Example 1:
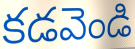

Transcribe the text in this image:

కడవెండి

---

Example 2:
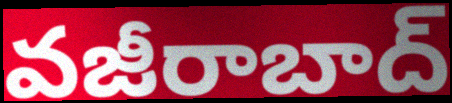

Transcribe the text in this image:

వజీరాబాద్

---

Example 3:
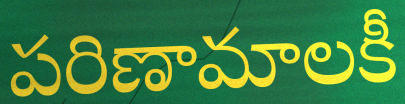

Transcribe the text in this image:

పరిణామాలకీ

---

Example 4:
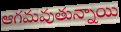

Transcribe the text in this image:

ఆగమవుతున్నాయి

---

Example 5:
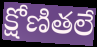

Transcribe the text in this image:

క్షోణితలే